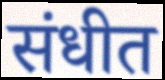
संधीत